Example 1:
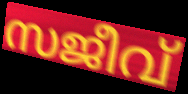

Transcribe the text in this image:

സജീവ്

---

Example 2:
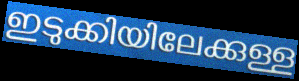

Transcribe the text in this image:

ഇടുക്കിയിലേക്കുള്ള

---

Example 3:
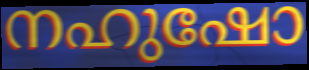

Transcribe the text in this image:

നഹുഷോ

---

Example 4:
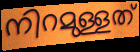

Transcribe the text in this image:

നിറമുള്ളത്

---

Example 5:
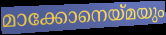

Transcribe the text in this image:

മാക്കോനെയ്മയും